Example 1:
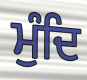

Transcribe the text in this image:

ਮੁੰਦਿ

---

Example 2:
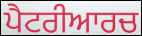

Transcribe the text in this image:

ਪੈਟਰੀਆਰਚ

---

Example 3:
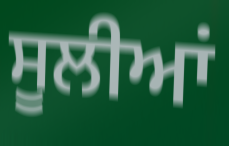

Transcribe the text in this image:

ਸੂਲੀਆਂ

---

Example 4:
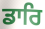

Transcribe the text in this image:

ਡਾਰਿ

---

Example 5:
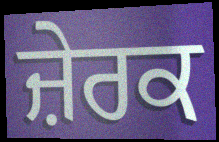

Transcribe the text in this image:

ਜ਼ੇਰਕ